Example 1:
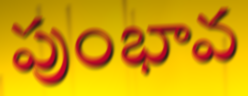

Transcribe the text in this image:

పుంభావ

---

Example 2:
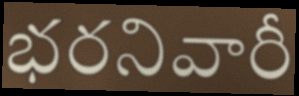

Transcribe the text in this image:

భరనివారీ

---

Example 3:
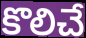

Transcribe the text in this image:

కొలిచే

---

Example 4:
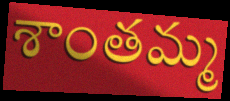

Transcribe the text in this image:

శాంతమ్మ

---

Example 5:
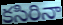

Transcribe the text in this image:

కసిరినా